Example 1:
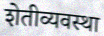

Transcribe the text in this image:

शेतीव्यवस्था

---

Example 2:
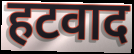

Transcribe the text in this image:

हटवाद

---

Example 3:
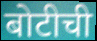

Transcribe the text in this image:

बोटीची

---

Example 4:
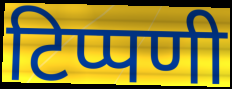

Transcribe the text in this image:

टिप्पणी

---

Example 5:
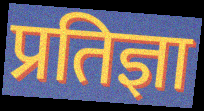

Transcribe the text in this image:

प्रतिज्ञा